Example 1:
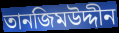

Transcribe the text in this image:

তানজিমউদ্দীন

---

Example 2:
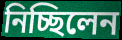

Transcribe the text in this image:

নিচ্ছিলেন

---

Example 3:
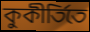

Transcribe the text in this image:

কুকীর্তিতে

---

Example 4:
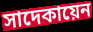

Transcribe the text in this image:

সাদেকায়েন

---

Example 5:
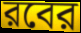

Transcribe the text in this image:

রবের